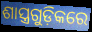
ଶାସ୍ତ୍ରଗୁଡ଼ିକରେ